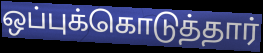
ஒப்புக்கொடுத்தார்